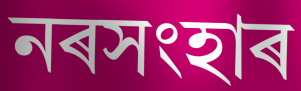
নৰসংহাৰ